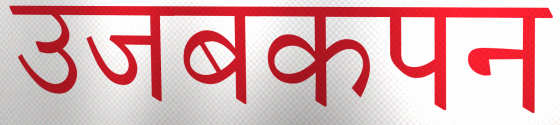
उजबकपन